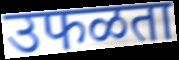
उफळता